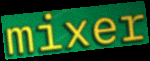
mixer